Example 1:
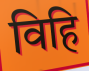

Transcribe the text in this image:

विहि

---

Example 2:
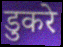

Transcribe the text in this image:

डुकरे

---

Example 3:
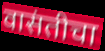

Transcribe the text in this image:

वासंतीचा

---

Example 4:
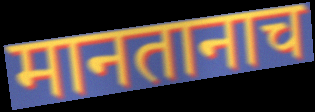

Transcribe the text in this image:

मानतानाच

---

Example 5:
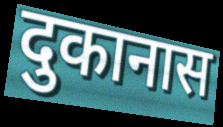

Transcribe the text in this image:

दुकानास